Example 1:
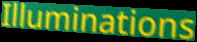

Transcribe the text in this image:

Illuminations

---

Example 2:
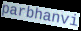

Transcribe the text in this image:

parbhanvi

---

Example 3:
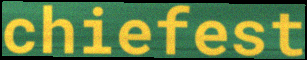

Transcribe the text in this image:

chiefest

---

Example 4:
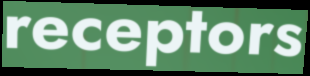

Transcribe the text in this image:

receptors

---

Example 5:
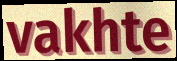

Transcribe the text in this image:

vakhte